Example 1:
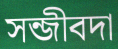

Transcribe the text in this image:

সন্জীবদা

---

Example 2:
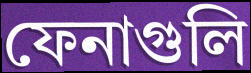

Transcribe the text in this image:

ফেনাগুলি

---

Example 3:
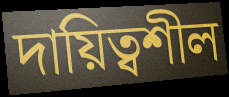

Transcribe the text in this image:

দায়িত্বশীল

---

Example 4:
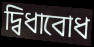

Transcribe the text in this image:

দ্বিধাবোধ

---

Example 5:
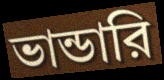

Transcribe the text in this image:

ভান্ডারি